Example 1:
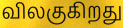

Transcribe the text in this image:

விலகுகிறது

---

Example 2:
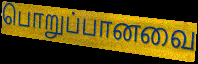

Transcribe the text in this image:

பொறுப்பானவை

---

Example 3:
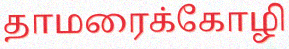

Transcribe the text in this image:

தாமரைக்கோழி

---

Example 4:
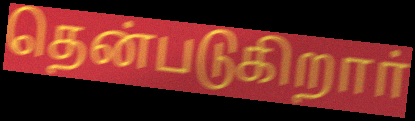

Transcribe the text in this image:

தென்படுகிறார்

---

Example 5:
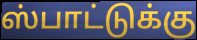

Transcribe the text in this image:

ஸ்பாட்டுக்கு